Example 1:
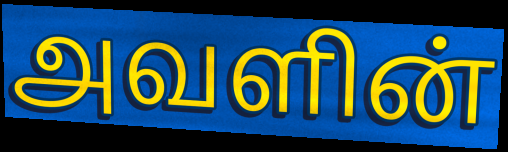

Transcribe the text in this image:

அவளின்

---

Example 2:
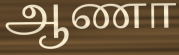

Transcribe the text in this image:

ஆணா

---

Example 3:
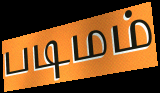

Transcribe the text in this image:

படிமம்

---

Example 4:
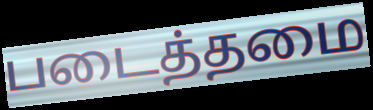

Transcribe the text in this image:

படைத்தமை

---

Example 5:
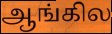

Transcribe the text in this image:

ஆங்கில